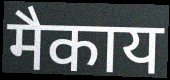
मैकाय